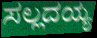
ಸಲ್ಲದಯ್ಯ